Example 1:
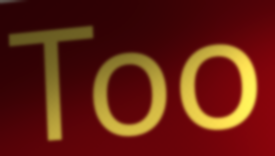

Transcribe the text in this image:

Too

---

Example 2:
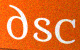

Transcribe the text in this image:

dsc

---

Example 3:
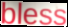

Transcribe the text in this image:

bless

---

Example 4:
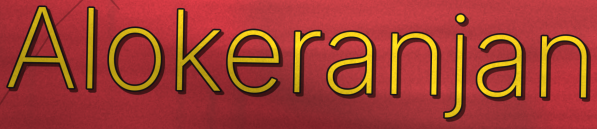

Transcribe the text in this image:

Alokeranjan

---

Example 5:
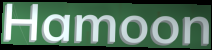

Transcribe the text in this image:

Hamoon